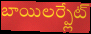
బాయిలర్ప్లేట్